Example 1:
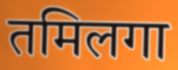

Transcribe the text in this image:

तमिलगा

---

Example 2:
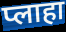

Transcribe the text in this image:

प्लाहा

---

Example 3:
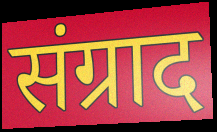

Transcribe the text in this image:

संग्राद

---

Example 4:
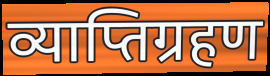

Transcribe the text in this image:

व्याप्तिग्रहण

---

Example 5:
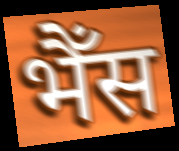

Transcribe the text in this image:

भैँस